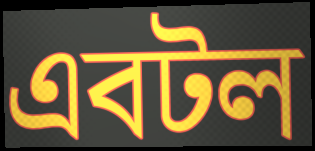
এবটল